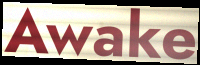
Awake